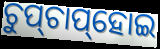
ଚୁପ୍‌ଚାପ୍‌ହୋଇ